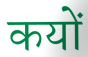
कयों